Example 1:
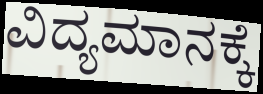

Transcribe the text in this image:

ವಿದ್ಯಮಾನಕ್ಕೆ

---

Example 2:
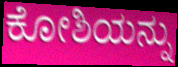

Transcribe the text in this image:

ಕೋಶಿಯನ್ನು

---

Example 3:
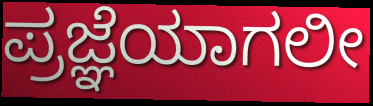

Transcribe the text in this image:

ಪ್ರಜ್ಞೆಯಾಗಲೀ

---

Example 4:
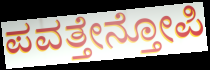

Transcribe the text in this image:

ಪವತ್ತೇನ್ತೋಪಿ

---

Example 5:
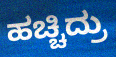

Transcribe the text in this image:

ಹಚ್ಚಿದ್ರು